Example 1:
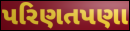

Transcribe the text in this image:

પરિણતપણા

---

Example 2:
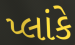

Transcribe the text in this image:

પ્લાંકે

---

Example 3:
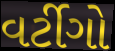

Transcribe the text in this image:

વર્ટીગો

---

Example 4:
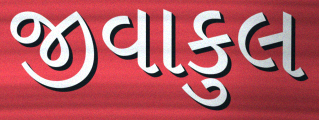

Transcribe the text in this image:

જીવાકુલ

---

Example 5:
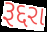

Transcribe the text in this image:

રૂદ્દરા